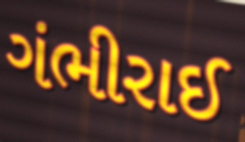
ગંભીરાઈ